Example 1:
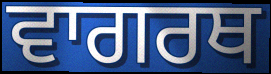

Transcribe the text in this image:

ਵਾਗਰਥ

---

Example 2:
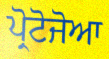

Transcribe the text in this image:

ਪ੍ਰੋਟੋਜੋਆ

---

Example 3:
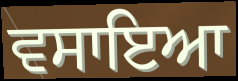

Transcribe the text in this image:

ਵਸਾਇਆ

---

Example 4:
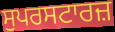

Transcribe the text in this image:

ਸੁਪਰਸਟਾਰਜ਼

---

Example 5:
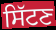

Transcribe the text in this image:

ਸਿੱਟਣ